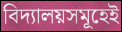
বিদ্যালয়সমূহেই